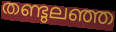
തണ്ടുലഞ്ഞ